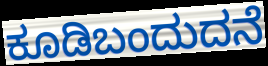
ಕೂಡಿಬಂದುದನೆ